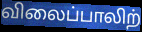
விலைப்பாலிற்